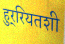
हुर्रियतशी